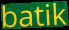
batik